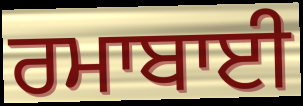
ਰਮਾਬਾਈ